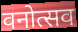
वनोत्सव